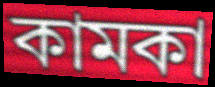
কামকা